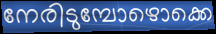
നേരിടുമ്പോഴൊക്കെ